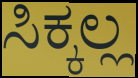
ಸಿಕ್ಕಲ್ಲ